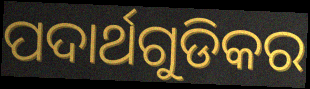
ପଦାର୍ଥଗୁଡିକର